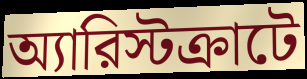
অ্যারিস্টক্রাটে